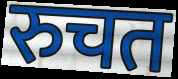
रुचत